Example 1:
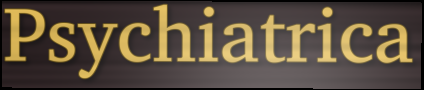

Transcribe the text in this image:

Psychiatrica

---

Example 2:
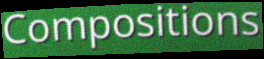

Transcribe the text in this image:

Compositions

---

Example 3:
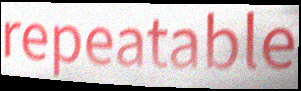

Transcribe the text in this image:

repeatable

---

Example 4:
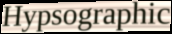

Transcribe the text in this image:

Hypsographic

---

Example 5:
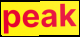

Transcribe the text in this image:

peak